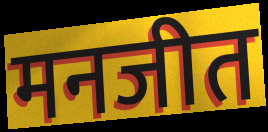
मनजीत